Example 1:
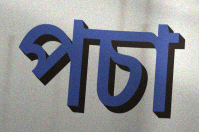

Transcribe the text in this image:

পচা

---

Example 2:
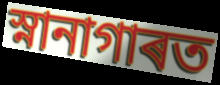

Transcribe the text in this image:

স্নানাগাৰত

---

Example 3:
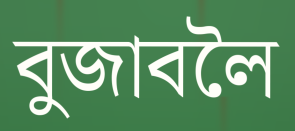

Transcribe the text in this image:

বুজাবলৈ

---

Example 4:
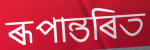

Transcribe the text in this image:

ৰূপান্তৰিত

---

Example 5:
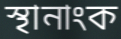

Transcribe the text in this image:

স্থানাংক